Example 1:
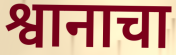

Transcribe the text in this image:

श्वानाचा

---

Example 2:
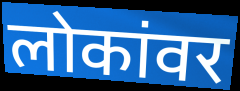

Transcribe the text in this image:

लोकांवर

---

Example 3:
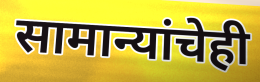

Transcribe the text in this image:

सामान्यांचेही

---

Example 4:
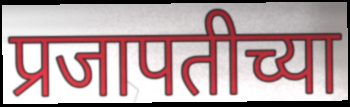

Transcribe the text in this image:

प्रजापतीच्या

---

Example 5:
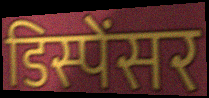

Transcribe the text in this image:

डिस्पेंसर